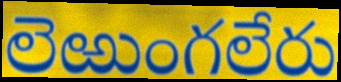
లెఱుంగలేరు